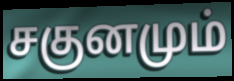
சகுனமும்